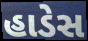
હાડેસ